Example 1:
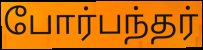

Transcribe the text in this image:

போர்பந்தர்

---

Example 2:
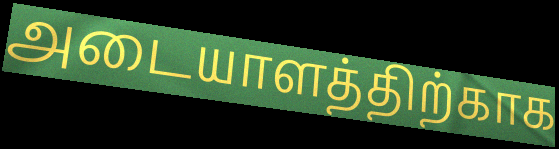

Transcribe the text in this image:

அடையாளத்திற்காக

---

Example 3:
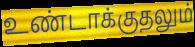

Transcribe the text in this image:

உண்டாக்குதலும்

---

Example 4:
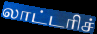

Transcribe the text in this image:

லாட்டரிச்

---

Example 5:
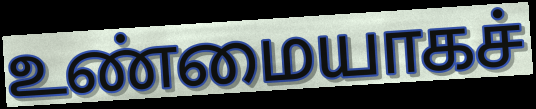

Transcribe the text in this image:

உண்மையாகச்